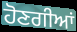
ਹੋਣਗੀਆਂ